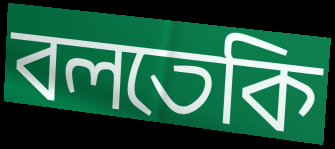
বলতেকি